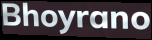
Bhoyrano